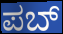
ಪಬ್